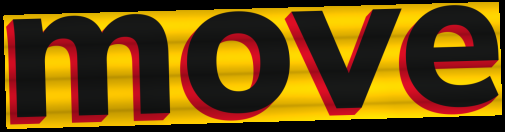
move